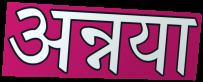
अन्नया